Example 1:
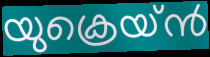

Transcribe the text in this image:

യുക്രെയ്ൻ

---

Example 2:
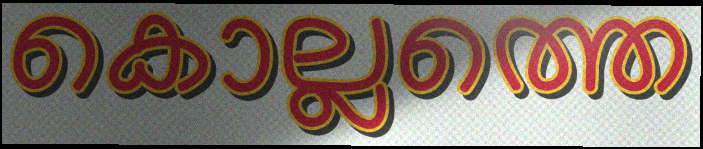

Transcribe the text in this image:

കൊല്ലത്തെ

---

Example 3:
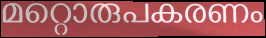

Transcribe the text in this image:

മറ്റൊരുപകരണം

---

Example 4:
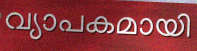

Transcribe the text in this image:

വ്യാപകമായി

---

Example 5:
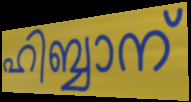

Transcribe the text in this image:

ഹിബ്ബാന്